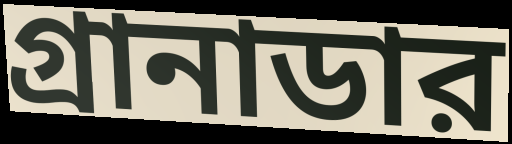
গ্রানাডার